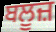
ਬਲੂਜ਼